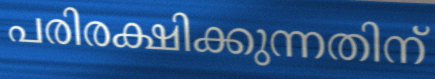
പരിരക്ഷിക്കുന്നതിന്